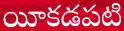
యీకడపటి